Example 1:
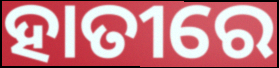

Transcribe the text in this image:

ହାତୀରେ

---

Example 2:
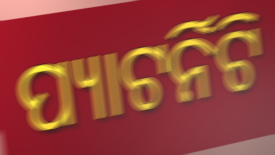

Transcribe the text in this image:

ପ୍ୟାଟର୍ନିଟି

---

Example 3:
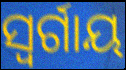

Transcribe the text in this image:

ସ୍ବର୍ଗାୟ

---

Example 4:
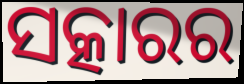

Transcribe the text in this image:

ସତ୍କାରର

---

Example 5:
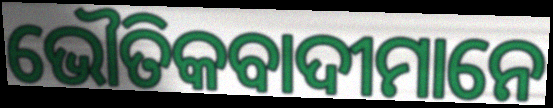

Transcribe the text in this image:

ଭୌତିକବାଦୀମାନେ